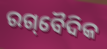
ରଗ୍‌ବୈଦିକ